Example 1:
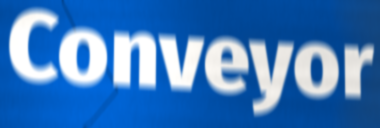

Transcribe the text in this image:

Conveyor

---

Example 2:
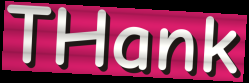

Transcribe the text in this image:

THank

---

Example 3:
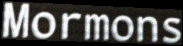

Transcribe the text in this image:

Mormons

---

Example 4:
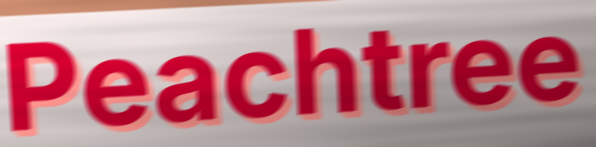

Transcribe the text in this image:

Peachtree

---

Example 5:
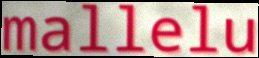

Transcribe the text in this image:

mallelu